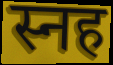
स्नह